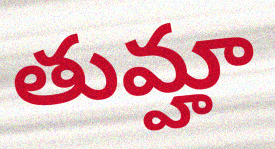
తుమ్హా